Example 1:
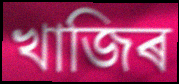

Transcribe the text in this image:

খাজিৰ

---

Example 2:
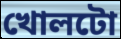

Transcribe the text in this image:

খোলটো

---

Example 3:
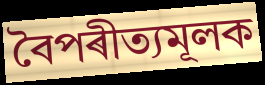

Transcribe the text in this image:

বৈপৰীত্যমূলক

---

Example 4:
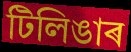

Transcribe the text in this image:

টিলিঙাৰ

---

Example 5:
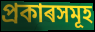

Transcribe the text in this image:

প্ৰকাৰসমূহ